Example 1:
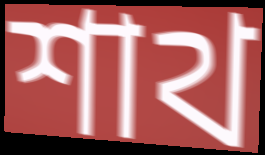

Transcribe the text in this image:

শাথ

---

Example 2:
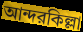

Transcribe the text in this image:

আন্দরকিল্লা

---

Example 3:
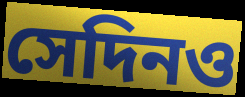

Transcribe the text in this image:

সেদিনও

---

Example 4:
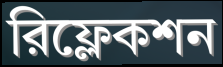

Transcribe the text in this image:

রিফ্লেকশন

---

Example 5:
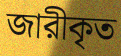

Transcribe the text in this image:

জারীকৃত